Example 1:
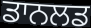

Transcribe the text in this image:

ਡਾਨਲਡ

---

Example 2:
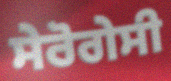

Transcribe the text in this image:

ਸੇਰੋਗੇਸੀ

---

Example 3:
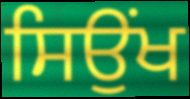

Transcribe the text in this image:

ਸਿਉਂਖ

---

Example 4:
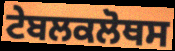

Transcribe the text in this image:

ਟੇਬਲਕਲੋਥਸ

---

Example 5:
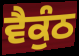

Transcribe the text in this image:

ਵੈਕੁੰਠ